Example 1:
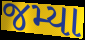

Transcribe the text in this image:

જમ્યા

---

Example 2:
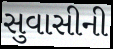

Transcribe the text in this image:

સુવાસીની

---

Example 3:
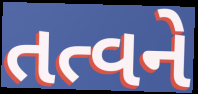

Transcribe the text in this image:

તત્વને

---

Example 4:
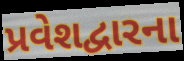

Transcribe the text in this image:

પ્રવેશદ્વારના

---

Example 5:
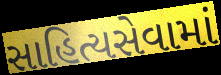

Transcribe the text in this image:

સાહિત્યસેવામાં